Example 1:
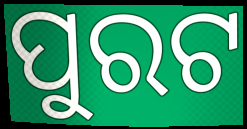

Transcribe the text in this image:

ପୁରଟ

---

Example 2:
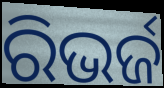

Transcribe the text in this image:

ରିଭର୍ଜ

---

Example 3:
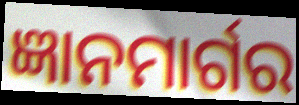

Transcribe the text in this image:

ଜ୍ଞାନମାର୍ଗର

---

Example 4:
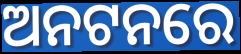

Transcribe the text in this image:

ଅନଟନରେ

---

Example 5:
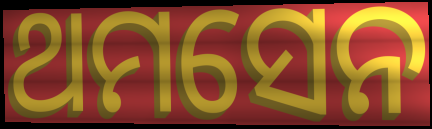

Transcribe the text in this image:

ଥମସେନ